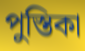
পুস্তিকা